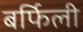
बर्फिली